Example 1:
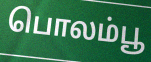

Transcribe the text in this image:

பொலம்பூ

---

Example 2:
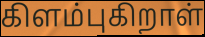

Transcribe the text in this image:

கிளம்புகிறாள்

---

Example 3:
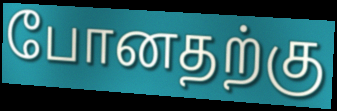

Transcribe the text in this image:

போனதற்கு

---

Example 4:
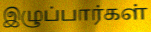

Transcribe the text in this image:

இழுப்பார்கள்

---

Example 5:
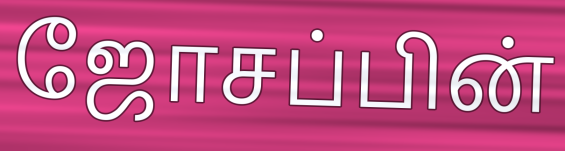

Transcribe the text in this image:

ஜோசப்பின்